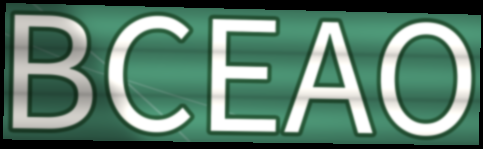
BCEAO